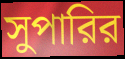
সুপারির